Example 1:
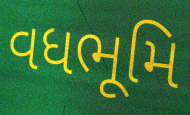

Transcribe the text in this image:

વધભૂમિ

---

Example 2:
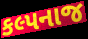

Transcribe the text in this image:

કલ્પનાજ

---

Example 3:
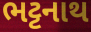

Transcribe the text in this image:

ભટ્ટનાથ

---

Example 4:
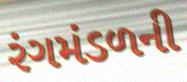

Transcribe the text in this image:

રંગમંડળની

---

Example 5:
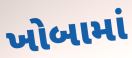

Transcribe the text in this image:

ખોબામાં